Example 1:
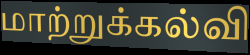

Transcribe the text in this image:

மாற்றுக்கல்வி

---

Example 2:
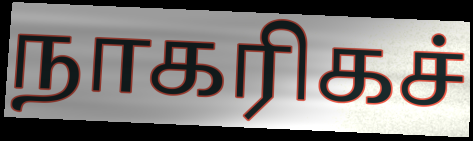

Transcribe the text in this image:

நாகரிகச்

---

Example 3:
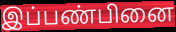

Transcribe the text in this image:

இப்பண்பினை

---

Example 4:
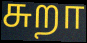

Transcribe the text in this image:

சுறா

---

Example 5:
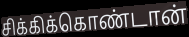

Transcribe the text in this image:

சிக்கிக்கொண்டான்